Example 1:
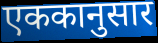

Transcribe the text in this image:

एककानुसार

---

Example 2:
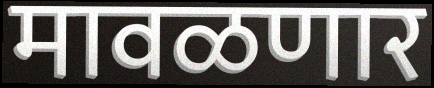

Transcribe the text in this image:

मावळणार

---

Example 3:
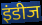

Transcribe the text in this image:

इंडीज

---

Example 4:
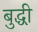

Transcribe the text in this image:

बुद्धी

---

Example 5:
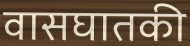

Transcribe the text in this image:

वासघातकी